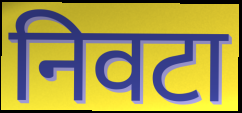
निवटा